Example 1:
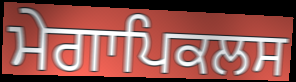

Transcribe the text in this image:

ਮੇਗਾਪਿਕਲਸ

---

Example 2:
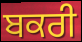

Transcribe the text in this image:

ਬਕਰੀ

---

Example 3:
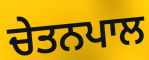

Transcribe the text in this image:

ਚੇਤਨਪਾਲ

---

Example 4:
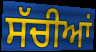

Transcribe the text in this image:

ਸੱਚੀਆਂ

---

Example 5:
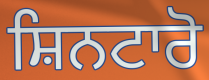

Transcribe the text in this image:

ਸ਼ਿਨਟਾਰੋ